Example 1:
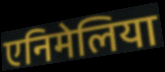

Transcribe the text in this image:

एनिमेलिया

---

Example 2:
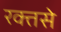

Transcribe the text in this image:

रक्तसे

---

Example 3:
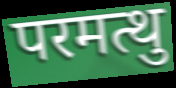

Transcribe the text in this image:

परमत्थु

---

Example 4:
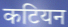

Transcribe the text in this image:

कटियन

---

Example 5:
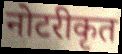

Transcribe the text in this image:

नोटरीकृत